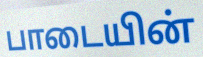
பாடையின்